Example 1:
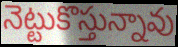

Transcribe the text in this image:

నెట్టుకొస్తున్నావు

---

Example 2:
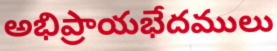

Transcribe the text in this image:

అభిప్రాయభేదములు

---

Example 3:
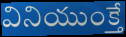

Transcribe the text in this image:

వినియుంక్తే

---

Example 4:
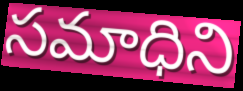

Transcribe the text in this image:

సమాధిని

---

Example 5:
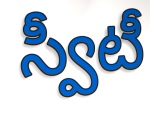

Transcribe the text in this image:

స్వీటీ